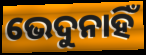
ଭେଦୁନାହିଁ